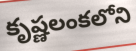
కృష్ణలంకలోని